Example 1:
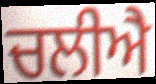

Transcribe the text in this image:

ਚਲੀਐ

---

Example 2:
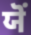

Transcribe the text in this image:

ਯੋਂ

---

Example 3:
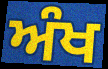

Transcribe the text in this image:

ਅੰਖ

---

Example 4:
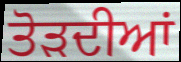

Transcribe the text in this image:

ਤੋੜਦੀਆਂ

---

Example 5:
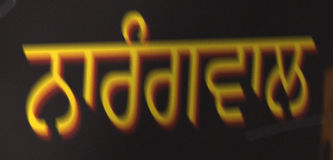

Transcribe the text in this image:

ਨਾਰੰਗਵਾਲ